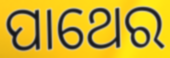
ପାଥେର